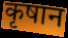
कृषान